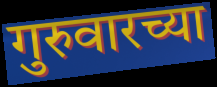
गुरुवारच्या